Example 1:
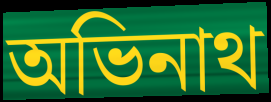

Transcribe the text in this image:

অভিনাথ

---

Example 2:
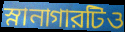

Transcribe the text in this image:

স্নানাগারটিও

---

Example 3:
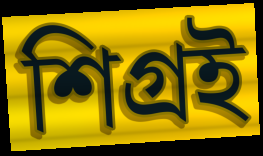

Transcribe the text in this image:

শিগ্রই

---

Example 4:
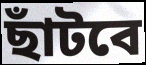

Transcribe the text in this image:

ছাঁটবে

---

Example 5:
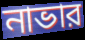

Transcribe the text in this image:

নাভার